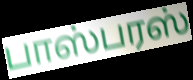
பாஸ்பரஸ்